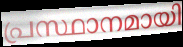
പ്രസ്ഥാനമായി